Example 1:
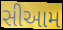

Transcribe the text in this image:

સીઆમ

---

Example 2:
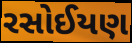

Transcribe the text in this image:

રસોઈયણ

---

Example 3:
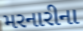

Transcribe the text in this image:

મરનારીના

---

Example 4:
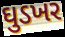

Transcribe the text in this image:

ઘુડખર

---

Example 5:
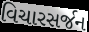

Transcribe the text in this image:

વિચારસર્જન